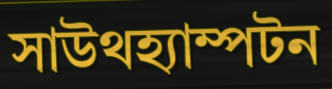
সাউথহ্যাম্পটন